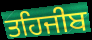
ਤਹਿਜੀਬ